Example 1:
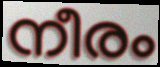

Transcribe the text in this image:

നീരം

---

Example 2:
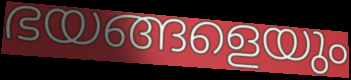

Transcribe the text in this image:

ഭയങ്ങളെയും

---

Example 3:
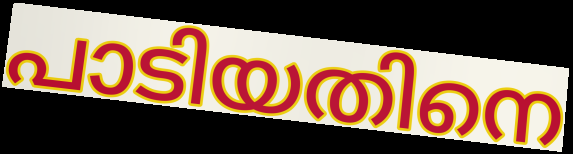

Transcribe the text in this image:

പാടിയതിനെ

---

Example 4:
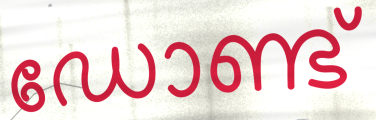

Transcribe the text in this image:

ഡോണ്ട്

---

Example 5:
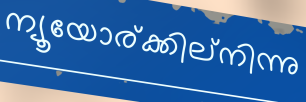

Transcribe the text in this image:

ന്യൂയോര്ക്കില്നിന്നു